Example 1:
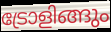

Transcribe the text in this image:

ട്രോളിങ്ങും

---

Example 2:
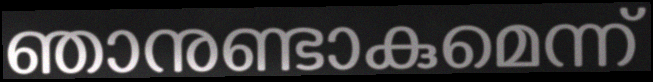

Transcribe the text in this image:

ഞാനുണ്ടാകുമെന്ന്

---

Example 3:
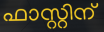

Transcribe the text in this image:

ഫാസ്റ്റിന്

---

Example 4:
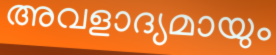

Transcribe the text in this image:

അവളാദ്യമായും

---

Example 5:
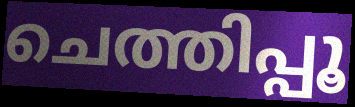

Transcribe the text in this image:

ചെത്തിപ്പൂ